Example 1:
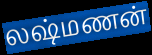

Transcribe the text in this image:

லஷ்மணன்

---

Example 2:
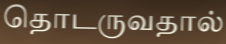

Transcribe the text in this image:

தொடருவதால்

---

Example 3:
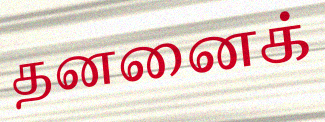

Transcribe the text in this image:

தனனைக்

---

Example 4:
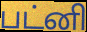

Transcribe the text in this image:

பட்னி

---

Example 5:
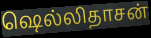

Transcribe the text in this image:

ஷெல்லிதாசன்